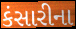
કંસારીના